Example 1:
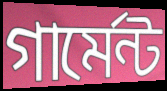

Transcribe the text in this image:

গার্মেন্ট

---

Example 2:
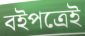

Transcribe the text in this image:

বইপত্রেই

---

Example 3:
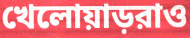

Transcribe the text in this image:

খেলোয়াড়রাও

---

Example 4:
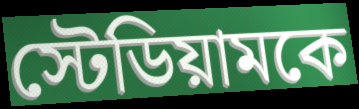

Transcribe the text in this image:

স্টেডিয়ামকে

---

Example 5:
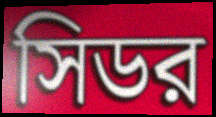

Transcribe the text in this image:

সিডর